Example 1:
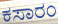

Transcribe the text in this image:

ಕಸಾರಂ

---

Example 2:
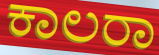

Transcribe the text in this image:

ಕಾಲರಾ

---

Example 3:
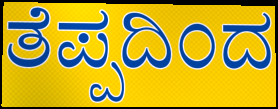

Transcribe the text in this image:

ತೆಪ್ಪದಿಂದ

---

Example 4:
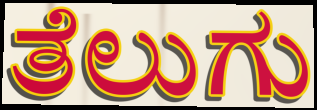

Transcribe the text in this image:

ತೆಲುಗು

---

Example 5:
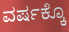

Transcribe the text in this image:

ವರ್ಷಕ್ಕೊ